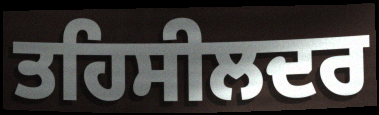
ਤਹਿਸੀਲਦਰ